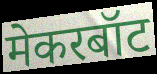
मेकरबॉट